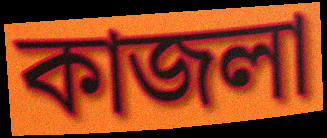
কাজলা